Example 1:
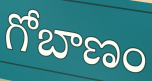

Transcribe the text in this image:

గోబాణం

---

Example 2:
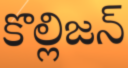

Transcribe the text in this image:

కొల్లిజన్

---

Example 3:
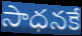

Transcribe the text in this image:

సాధనకే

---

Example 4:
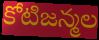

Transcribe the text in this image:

కోటిజన్మల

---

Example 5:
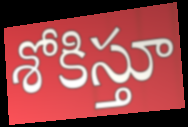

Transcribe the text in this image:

శోకిస్తూ